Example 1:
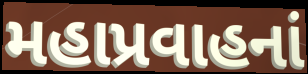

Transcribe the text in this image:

મહાપ્રવાહનાં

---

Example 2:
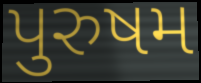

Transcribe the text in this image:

પુરુષમ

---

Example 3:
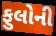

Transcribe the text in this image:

ફુલોની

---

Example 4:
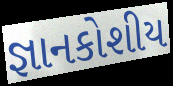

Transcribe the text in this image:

જ્ઞાનકોશીય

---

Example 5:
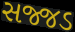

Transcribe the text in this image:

સજ્જડ